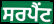
ਸਰਪੈਂਟ